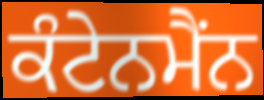
ਕੰਟੇਨਮੈਂਨ